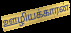
ஊழியக்காரன்